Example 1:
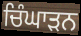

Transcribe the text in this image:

ਚਿੰਘਾੜਨ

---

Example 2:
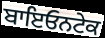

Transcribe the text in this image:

ਬਾਇਓਨਟੇਕ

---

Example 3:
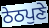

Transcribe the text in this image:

ਠੇਠਪੁਣੇ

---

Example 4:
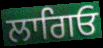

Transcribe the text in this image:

ਲਾਗਿਓ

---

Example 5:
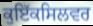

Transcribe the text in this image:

ਕੁਇੱਕਸਿਲਵਰ